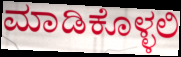
ಮಾಡಿಕೊಳ್ಳಲಿ